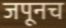
जपूनच